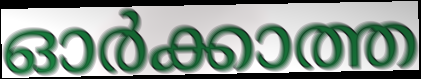
ഓർക്കാത്ത